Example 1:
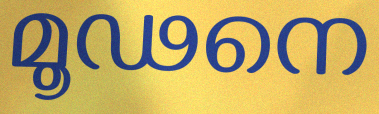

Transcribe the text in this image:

മൂഢനെ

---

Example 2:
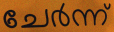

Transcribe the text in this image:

ചേർന്ന്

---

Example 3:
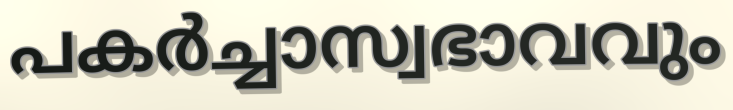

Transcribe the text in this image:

പകർച്ചാസ്വഭാവവും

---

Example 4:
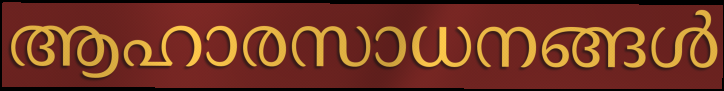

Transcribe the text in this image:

ആഹാരസാധനങ്ങൾ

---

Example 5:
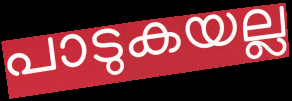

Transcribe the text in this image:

പാടുകയല്ല